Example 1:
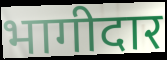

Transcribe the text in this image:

भागीदार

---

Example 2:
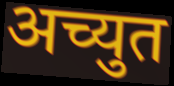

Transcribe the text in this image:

अच्‍युत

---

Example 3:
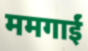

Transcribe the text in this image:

ममगाईं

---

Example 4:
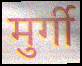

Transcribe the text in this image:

मुर्गी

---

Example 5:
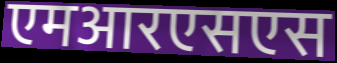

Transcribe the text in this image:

एमआरएसएस